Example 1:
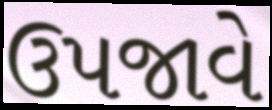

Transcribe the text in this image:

ઉપજાવે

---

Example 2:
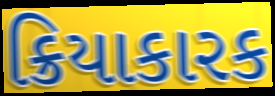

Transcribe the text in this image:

ક્રિયાકારક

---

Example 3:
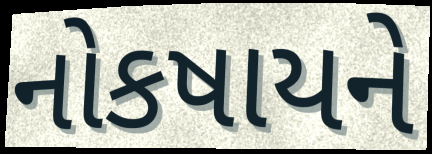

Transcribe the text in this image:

નોકષાયને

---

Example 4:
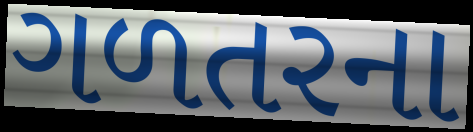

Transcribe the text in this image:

ગળતરના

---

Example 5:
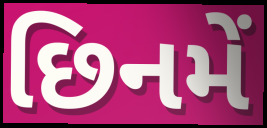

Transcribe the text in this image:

છિનમેં